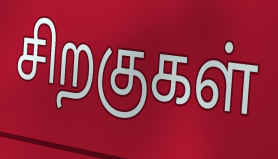
சிறகுகள்